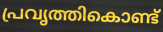
പ്രവൃത്തികൊണ്ട്